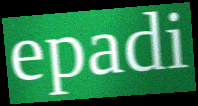
epadi